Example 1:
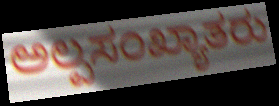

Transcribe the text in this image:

ಅಲ್ಪಸಂಖ್ಯಾತರು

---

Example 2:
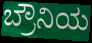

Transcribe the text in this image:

ಬ್ರೌನಿಯ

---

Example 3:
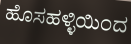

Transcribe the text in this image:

ಹೊಸಹಳ್ಳಿಯಿಂದ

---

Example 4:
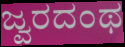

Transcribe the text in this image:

ಜ್ವರದಂಥ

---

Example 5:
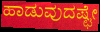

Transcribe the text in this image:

ಹಾಡುವುದಷ್ಟೇ